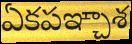
ఏకపఞ్చాశ